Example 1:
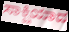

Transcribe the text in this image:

ಸಾಕ್ಷಿಯಾದ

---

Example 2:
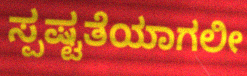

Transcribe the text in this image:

ಸ್ಪಷ್ಟತೆಯಾಗಲೀ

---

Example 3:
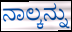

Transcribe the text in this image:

ನಾಲ್ಕನ್ನು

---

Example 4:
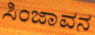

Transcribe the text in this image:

ಸಿಂಜಾವನ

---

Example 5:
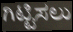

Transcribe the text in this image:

ಗಿಟ್ಟಿಸಲು